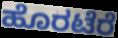
ಹೊರಟೆರೆ